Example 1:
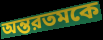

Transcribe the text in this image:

অন্তরতমকে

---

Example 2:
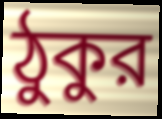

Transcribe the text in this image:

ঠুকুর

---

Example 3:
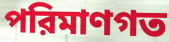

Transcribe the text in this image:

পরিমাণগত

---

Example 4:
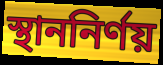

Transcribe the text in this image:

স্থাননির্ণয়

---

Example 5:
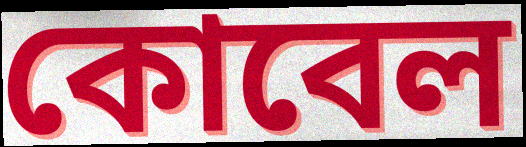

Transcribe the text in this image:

কোবেল